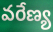
వరేణ్య